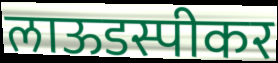
लाऊडस्पीकर